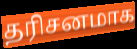
தரிசனமாக